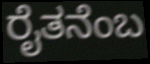
ರೈತನೆಂಬ